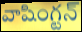
వాషింగ్టన్